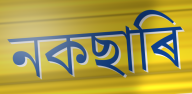
নকছাৰি